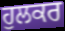
ਹੁਲਕਰ